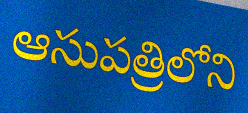
ఆసుపత్రిలోని